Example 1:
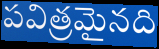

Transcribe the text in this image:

పవిత్రమైనది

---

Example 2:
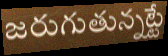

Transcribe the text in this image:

జరుగుతున్నట్టే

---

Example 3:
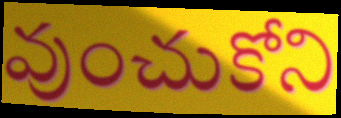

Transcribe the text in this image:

వుంచుకోని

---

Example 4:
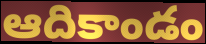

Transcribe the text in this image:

ఆదికాండం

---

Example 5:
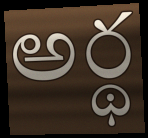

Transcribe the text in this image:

అర్థ